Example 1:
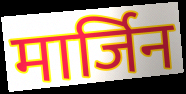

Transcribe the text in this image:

मार्जिन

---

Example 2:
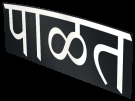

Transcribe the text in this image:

पाळत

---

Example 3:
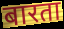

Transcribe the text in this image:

बारता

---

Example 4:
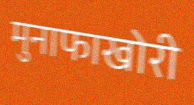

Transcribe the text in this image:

मुनाफाखोरी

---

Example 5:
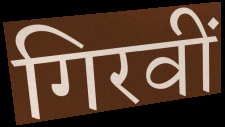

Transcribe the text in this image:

गिरवीं